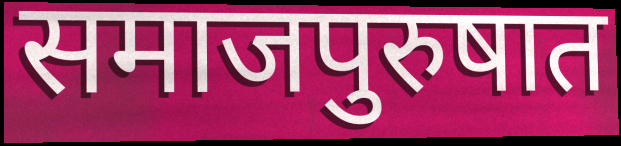
समाजपुरुषात